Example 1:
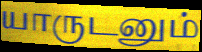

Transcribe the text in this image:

யாருடனும்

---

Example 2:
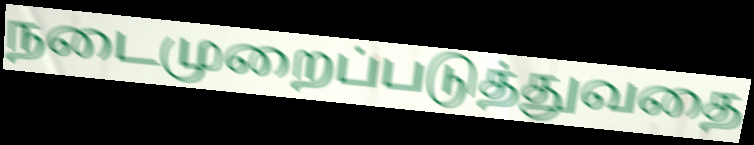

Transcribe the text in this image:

நடைமுறைப்படுத்துவதை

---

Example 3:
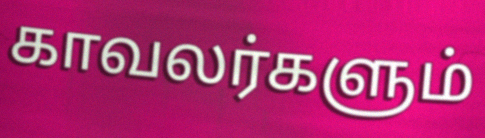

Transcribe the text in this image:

காவலர்களும்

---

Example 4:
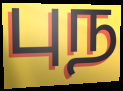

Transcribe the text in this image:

புந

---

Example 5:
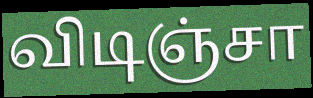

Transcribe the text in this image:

விடிஞ்சா